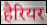
हैरियर